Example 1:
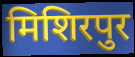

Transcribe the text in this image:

मिशिरपुर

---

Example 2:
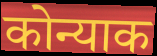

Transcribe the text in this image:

कोन्याक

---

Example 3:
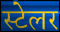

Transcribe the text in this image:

स्टेलर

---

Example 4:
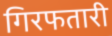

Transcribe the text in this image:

गिरफतारी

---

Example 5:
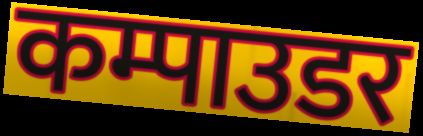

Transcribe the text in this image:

कम्पाउडर